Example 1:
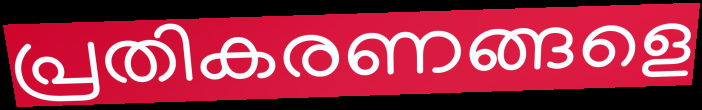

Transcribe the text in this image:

പ്രതികരണങ്ങളെ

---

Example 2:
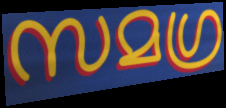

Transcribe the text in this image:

സമഗ്ര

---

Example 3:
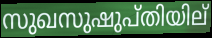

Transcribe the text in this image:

സുഖസുഷുപ്തിയില്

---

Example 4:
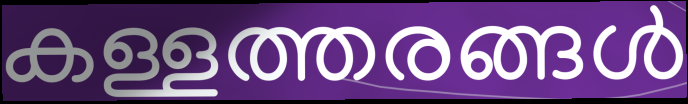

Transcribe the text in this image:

കള്ളത്തരങ്ങൾ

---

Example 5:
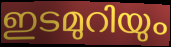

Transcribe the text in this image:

ഇടമുറിയും